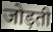
जोड़ती